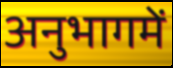
अनुभागमें